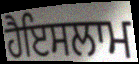
ਹੈਇਸਲਾਮ